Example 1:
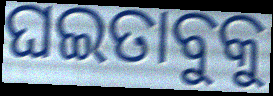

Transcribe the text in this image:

ଘଇତାବୁକୁ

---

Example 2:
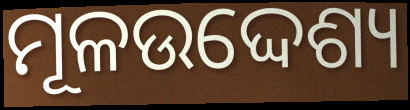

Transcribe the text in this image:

ମୂଳଉଦ୍ଦେଶ୍ୟ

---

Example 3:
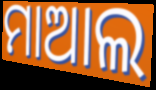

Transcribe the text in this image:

ମାଆଲ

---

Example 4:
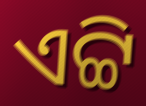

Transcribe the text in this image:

ଏଟ୍ଟି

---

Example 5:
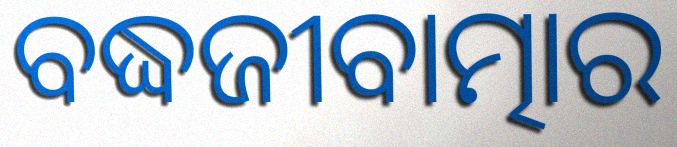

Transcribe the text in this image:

ବଦ୍ଧଜୀବାତ୍ମାର